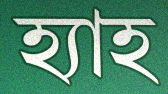
হ্যাহ